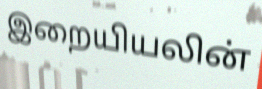
இறையியலின்